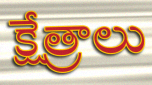
క్షేత్రాలు